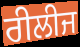
ਰੀਲੀਜ